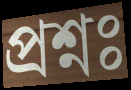
প্ৰশ্নঃ